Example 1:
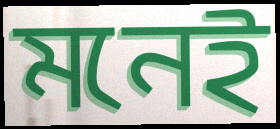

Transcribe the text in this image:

মনেই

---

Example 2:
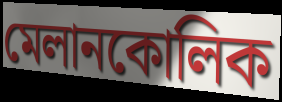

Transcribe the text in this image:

মেলানকোলিক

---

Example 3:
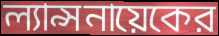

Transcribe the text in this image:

ল্যান্সনায়েকের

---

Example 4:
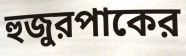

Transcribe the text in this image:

হুজুরপাকের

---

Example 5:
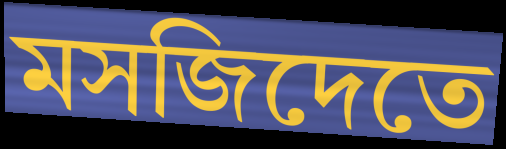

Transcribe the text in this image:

মসজিদেতে